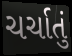
ચર્ચાતું